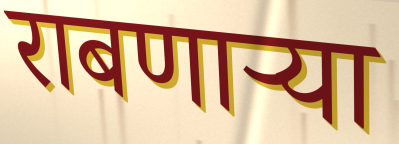
राबणार्‍या